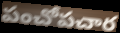
పంచోపచార